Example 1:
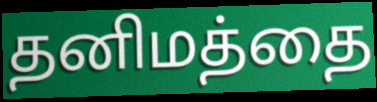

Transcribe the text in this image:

தனிமத்தை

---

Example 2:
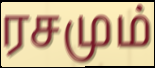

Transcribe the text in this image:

ரசமும்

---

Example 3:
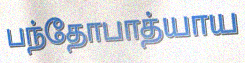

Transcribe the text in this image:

பந்தோபாத்யாய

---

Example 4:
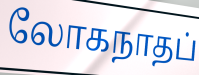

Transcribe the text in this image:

லோகநாதப்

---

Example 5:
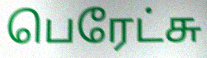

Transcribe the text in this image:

பெரேட்சு